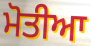
ਮੋਤੀਆ